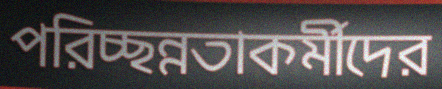
পরিচ্ছন্নতাকর্মীদের